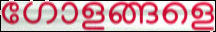
ഗോളങ്ങളെ